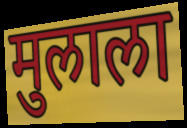
मुलाला